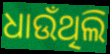
ଧାଉଁଥିଲି